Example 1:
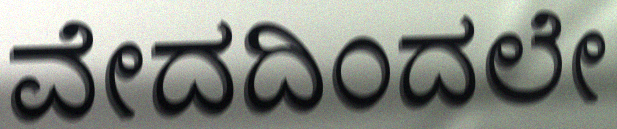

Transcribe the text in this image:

ವೇದದಿಂದಲೇ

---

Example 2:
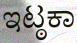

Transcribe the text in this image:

ಇಟ್ಠಕಾ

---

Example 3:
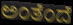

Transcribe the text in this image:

ಅಂತೆಂದೆ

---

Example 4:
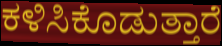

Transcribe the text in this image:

ಕಳಿಸಿಕೊಡುತ್ತಾರೆ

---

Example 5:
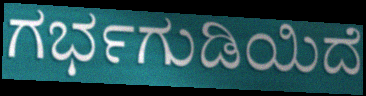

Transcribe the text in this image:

ಗರ್ಭಗುಡಿಯಿದೆ